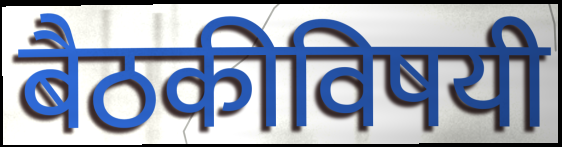
बैठकीविषयी